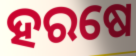
ହରଷେ